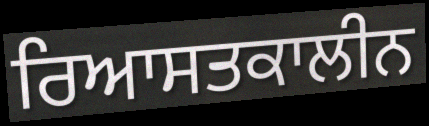
ਰਿਆਸਤਕਾਲੀਨ